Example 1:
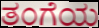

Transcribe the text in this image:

ತಂಗೆಯ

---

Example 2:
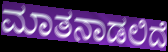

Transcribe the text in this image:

ಮಾತನಾಡಲಿದೆ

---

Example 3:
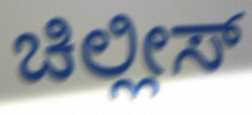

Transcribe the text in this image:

ಚಿಲ್ಲೀಸ್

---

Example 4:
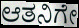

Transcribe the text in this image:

ಆತನಿಗೇ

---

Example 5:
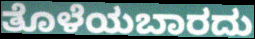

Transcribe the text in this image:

ತೊಳೆಯಬಾರದು